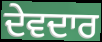
ਦੇਵਦਾਰ